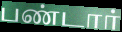
பண்டார்